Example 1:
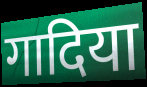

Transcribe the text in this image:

गादिया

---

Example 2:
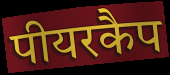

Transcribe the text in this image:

पीयरकैप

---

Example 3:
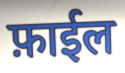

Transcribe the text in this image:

फ़ाईल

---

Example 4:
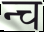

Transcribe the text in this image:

न्च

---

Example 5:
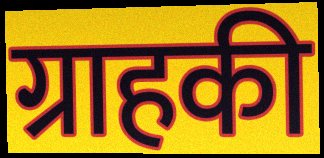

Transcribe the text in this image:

ग्राहकी